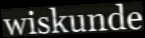
wiskunde